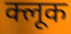
क्लूक